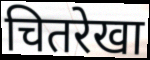
चितरेखा